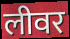
लीवर